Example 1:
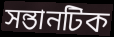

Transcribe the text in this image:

সন্তানটিক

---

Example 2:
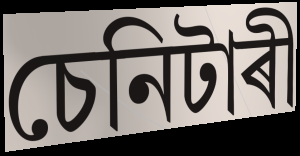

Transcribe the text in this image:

চেনিটাৰী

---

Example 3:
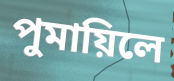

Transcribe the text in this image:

পুমায়িলে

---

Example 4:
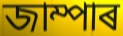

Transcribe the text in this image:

জাম্পাৰ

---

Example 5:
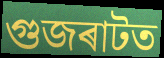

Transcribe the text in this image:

গুজৰাটত